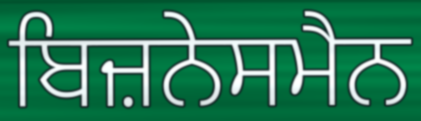
ਬਿਜ਼ਨੇਸਮੈਨ